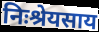
निःश्रेयसाय